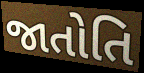
જાતોતિ